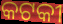
କଟକୀ